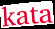
kata